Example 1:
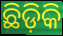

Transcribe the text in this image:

ଛିଡ଼ିକି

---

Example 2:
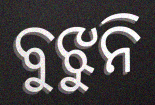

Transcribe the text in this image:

ବୁଝୁନି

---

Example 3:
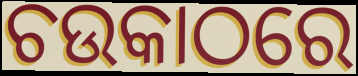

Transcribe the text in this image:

ଚଉକାଠରେ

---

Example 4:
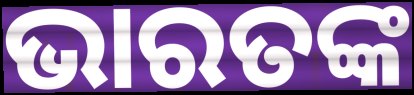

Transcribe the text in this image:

ଭାରତଙ୍କ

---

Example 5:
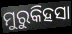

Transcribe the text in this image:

ମୁରୁକିହସା